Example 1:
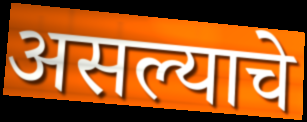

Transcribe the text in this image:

असल्याचे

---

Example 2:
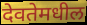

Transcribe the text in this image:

देवतेमधील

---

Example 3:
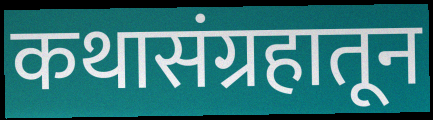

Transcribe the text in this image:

कथासंग्रहातून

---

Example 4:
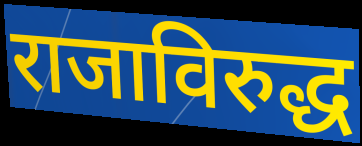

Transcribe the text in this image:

राजाविरुद्ध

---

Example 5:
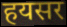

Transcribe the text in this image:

हयसर